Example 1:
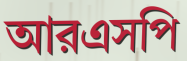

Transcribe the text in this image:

আরএসপি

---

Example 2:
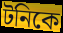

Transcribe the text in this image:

টনিকে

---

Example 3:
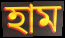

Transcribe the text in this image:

হাম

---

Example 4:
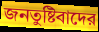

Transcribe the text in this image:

জনতুষ্টিবাদের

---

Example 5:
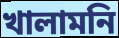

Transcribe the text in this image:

খালামনি